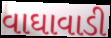
વાઘાવાડી